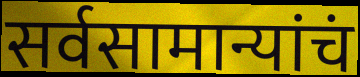
सर्वसामान्यांचं